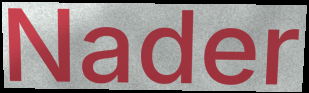
Nader